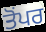
ਤੋਂਪਰ